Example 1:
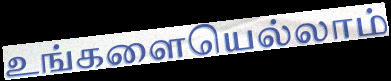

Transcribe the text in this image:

உங்களையெல்லாம்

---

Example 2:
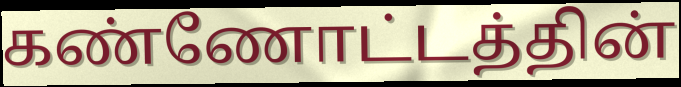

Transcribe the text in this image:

கண்ணோட்டத்தின்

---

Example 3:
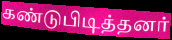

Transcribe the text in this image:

கண்டுபிடித்தனர்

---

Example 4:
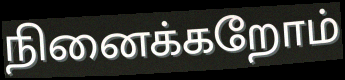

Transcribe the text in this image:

நினைக்கறோம்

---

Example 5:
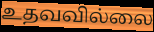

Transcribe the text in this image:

உதவவில்லை